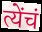
त्येंचं